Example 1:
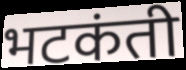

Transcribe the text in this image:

भटकंती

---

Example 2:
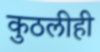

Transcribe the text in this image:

कुठलीही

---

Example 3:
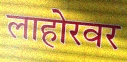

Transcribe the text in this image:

लाहोरवर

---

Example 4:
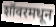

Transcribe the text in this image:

शॉवरमधून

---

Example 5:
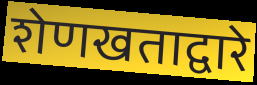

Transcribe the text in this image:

शेणखताद्वारे